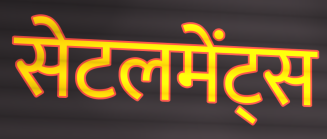
सेटलमेंट्स